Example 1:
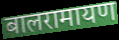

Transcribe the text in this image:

बालरामायण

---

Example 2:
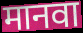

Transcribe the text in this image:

मानवा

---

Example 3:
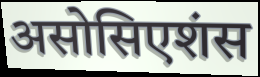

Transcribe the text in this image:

असोसिएशंस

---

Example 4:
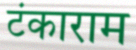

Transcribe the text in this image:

टंकाराम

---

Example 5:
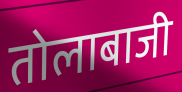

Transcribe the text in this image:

तोलाबाजी